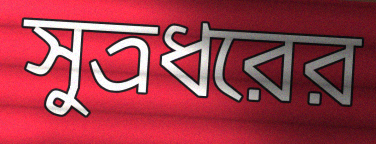
সুত্রধরের